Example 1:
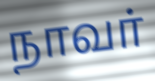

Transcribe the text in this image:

நாவர்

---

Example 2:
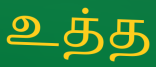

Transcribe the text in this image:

உத்த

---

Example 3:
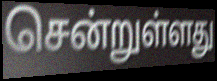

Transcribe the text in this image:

சென்றுள்ளது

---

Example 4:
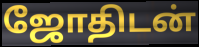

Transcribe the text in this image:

ஜோதிடன்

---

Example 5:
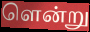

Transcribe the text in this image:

ளென்று